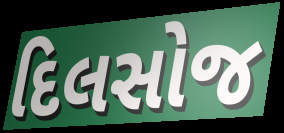
દિલસોજ